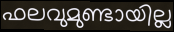
ഫലവുമുണ്ടായില്ല